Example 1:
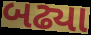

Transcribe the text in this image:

બઢ્યા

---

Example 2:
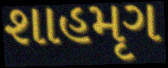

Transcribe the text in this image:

શાહમૃગ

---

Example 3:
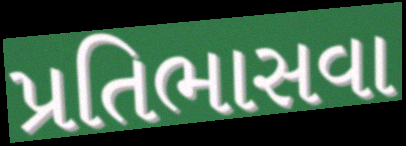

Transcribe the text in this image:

પ્રતિભાસવા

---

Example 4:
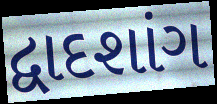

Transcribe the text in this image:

દ્વાદશાંગ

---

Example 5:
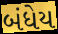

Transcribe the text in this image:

બંધેય